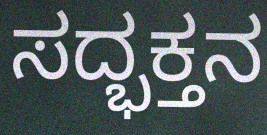
ಸದ್ಭಕ್ತನ